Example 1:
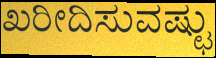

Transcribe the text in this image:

ಖರೀದಿಸುವಷ್ಟು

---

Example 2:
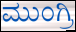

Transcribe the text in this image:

ಮುಂಗ್ರಿ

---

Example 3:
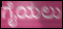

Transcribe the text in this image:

ಗೈಯಲು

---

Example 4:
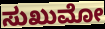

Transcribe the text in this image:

ಸುಖುಮೋ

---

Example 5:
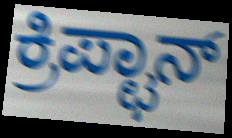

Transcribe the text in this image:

ಕ್ರಿಪ್ಟಾನ್